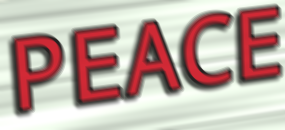
PEACE